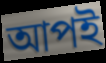
আপই